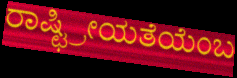
ರಾಷ್ಟ್ರೀಯತೆಯೆಂಬ